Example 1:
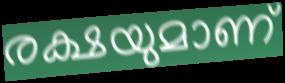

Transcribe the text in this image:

രക്ഷയുമാണ്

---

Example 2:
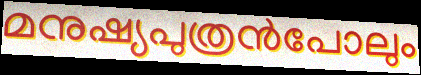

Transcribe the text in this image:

മനുഷ്യപുത്രൻപോലും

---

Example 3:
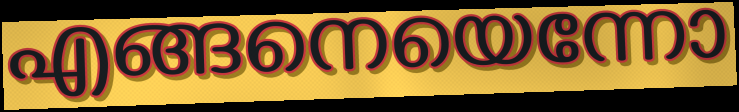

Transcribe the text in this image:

എങ്ങനെയെന്നോ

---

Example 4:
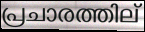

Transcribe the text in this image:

പ്രചാരത്തില്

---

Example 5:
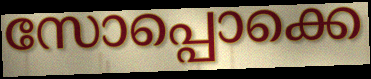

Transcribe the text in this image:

സോപ്പൊക്കെ